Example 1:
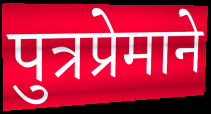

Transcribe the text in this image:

पुत्रप्रेमाने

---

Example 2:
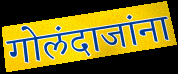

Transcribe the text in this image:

गोलंदाजांना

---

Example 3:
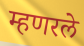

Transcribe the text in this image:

म्हणरले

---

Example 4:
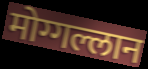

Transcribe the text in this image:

मोग्गल्लान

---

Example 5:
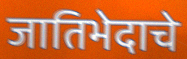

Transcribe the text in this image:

जातिभेदाचे